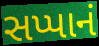
સપ્પાનં